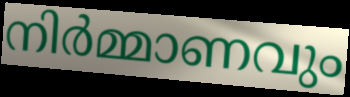
നിർമ്മാണവും